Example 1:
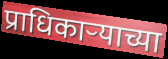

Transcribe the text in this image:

प्राधिकाऱ्याच्या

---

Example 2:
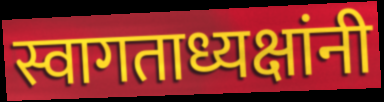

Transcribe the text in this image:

स्वागताध्यक्षांनी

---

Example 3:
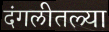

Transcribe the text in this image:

दंगलीतल्या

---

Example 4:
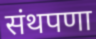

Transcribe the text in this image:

संथपणा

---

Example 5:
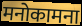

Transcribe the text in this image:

मनोकामना